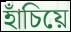
হাঁচিয়ে